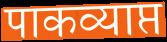
पाकव्याप्त